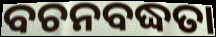
ବଚନବଦ୍ଧତା